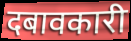
दबावकारी